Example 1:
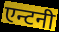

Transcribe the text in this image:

एन्टनी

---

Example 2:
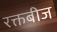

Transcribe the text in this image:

रक्तबीज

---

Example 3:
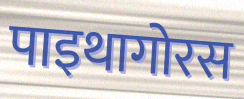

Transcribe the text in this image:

पाइथागोरस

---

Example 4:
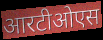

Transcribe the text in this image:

आरटीओएस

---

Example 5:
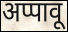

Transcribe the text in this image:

अप्पावू